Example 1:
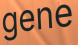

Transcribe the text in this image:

gene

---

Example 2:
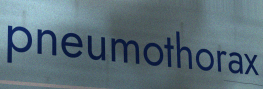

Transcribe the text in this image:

pneumothorax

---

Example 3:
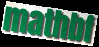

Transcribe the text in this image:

mathbf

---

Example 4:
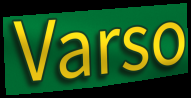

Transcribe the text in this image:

Varso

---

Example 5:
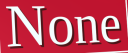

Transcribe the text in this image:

None